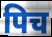
पिच